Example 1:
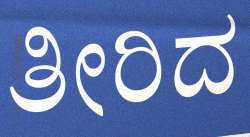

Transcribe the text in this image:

ತೀರಿದ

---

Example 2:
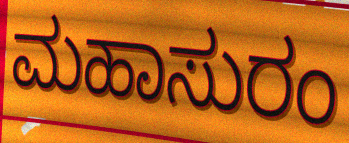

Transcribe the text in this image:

ಮಹಾಸುರಂ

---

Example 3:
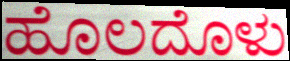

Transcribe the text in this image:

ಹೊಲದೊಳು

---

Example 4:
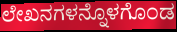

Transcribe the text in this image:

ಲೇಖನಗಳನ್ನೊಳಗೊಂಡ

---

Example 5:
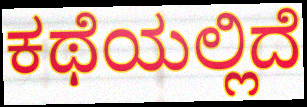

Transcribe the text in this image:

ಕಥೆಯಲ್ಲಿದೆ